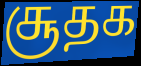
சூதக